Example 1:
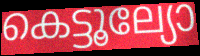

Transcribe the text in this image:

കെട്ടൂല്യോ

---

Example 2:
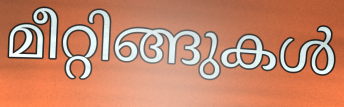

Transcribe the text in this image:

മീറ്റിങ്ങുകൾ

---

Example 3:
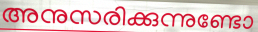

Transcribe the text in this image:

അനുസരിക്കുന്നുണ്ടോ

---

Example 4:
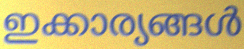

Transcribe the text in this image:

ഇക്കാര്യങ്ങൾ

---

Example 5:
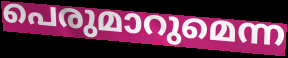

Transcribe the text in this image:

പെരുമാറുമെന്ന